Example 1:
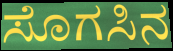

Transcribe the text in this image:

ಸೊಗಸಿನ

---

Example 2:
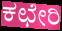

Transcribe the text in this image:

ಕಛೇರಿ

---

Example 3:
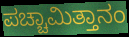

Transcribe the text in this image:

ಪಚ್ಚಾಮಿತ್ತಾನಂ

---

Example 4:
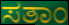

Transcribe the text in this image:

ಸತಾಂ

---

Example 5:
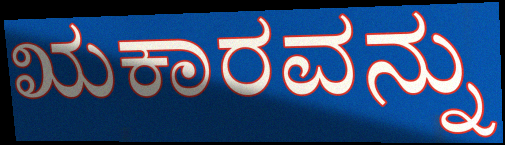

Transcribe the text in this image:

ಋಕಾರವನ್ನು